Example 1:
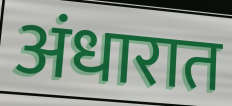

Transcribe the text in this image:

अंधारात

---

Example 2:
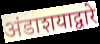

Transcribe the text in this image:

अंडाशयाद्वारे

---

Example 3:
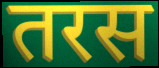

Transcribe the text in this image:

तरस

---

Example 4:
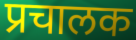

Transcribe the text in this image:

प्रचालक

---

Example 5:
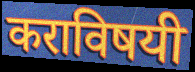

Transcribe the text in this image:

कराविषयी